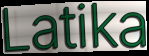
Latika